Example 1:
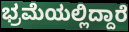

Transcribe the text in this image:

ಭ್ರಮೆಯಲ್ಲಿದ್ದಾರೆ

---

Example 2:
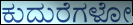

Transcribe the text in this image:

ಕುದುರೆಗಳೋ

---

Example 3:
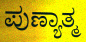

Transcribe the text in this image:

ಪುಣ್ಯಾತ್ಮ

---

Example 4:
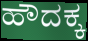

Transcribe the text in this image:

ಹೌದಕ್ಕ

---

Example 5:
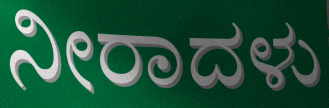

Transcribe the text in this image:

ನೀರಾದಳು